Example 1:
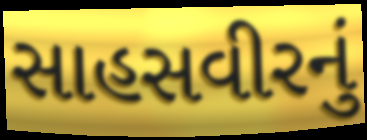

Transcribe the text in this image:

સાહસવીરનું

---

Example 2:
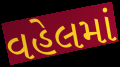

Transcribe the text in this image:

વહેલમાં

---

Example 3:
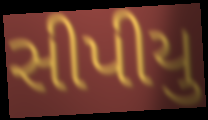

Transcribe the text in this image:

સીપીયુ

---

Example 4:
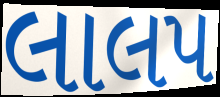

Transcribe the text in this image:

લાલપ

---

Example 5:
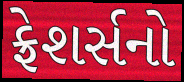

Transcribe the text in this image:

ફ્રેશર્સનો